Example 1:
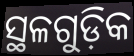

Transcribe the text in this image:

ସ୍ଥଳଗୁଡ଼ିକ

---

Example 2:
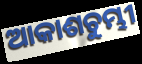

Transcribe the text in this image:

ଆକାଶଚୁମ୍ଭୀ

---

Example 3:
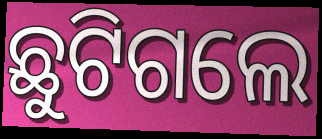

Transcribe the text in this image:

ଛୁଟିଗଲେ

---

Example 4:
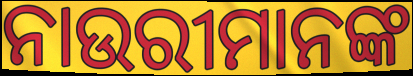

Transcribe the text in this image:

ନାଉରୀମାନଙ୍କ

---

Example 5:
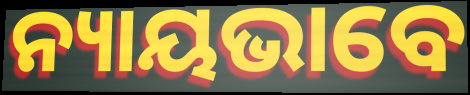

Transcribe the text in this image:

ନ୍ୟାୟଭାବେ